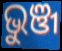
ଭୁଞ୍ଜ